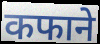
कफाने